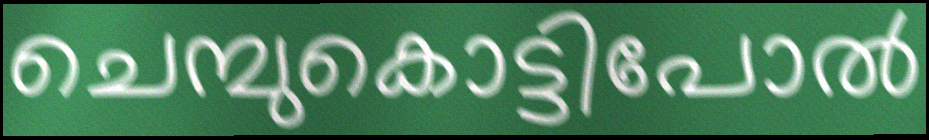
ചെമ്പുകൊട്ടിപോൽ